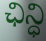
ఛిన్ధి